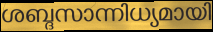
ശബ്ദസാന്നിധ്യമായി